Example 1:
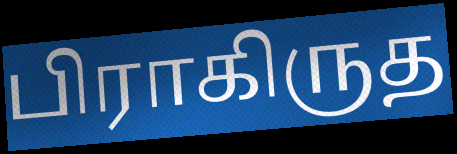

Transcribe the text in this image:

பிராகிருத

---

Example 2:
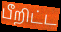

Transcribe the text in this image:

பீறிட்ட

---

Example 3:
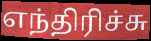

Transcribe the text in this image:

எந்திரிச்சு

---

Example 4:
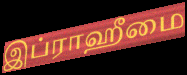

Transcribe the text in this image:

இப்ராஹீமை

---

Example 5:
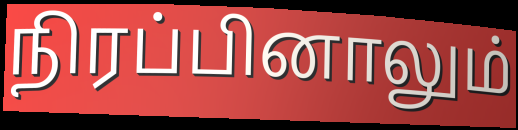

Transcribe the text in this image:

நிரப்பினாலும்